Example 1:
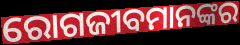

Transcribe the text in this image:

ରୋଗଜୀବମାନଙ୍କର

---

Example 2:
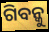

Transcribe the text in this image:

ଗିବନ୍କୁ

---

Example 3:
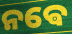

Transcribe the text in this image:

ନଵେ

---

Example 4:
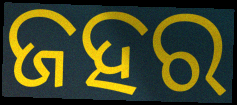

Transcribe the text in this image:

ଜହର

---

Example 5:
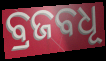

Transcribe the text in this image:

ବ୍ରଜବଧୂ